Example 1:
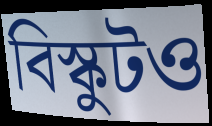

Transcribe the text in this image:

বিস্কুটও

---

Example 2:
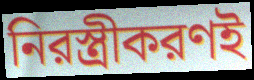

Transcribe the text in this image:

নিরস্ত্রীকরণই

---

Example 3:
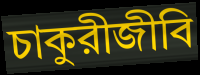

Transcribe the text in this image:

চাকুরীজীবি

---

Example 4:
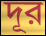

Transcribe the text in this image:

দূর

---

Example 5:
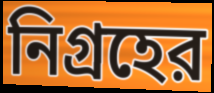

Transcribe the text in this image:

নিগ্রহের